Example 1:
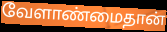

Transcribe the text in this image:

வேளாண்மைதான்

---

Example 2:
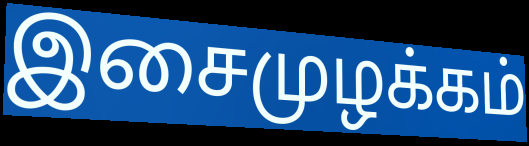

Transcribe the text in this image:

இசைமுழக்கம்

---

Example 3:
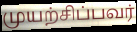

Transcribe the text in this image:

முயற்சிப்பவர்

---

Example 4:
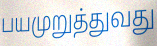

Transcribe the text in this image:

பயமுறுத்துவது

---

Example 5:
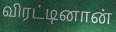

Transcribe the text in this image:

விரட்டினான்